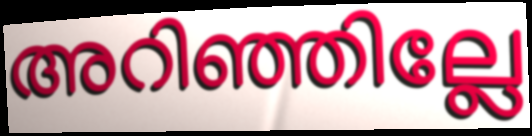
അറിഞ്ഞില്ലേ